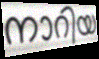
നാറിയ